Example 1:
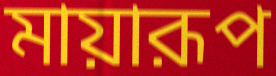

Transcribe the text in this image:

মায়ারূপ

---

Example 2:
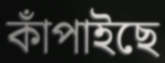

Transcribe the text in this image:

কাঁপাইছে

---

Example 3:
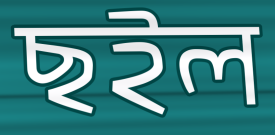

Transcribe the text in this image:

ছইল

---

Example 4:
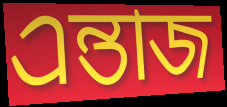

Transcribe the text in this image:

এন্তাজ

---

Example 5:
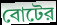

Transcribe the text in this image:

বোটের